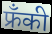
फ्रँकी